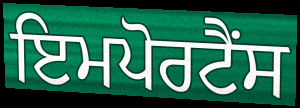
ਇਮਪੋਰਟੈਂਸ